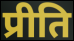
प्रीति